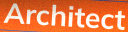
Architect